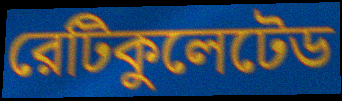
রেটিকুলেটেড